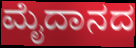
ಮೈದಾನದ